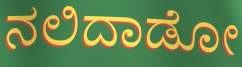
ನಲಿದಾಡೋ